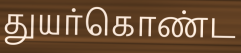
துயர்கொண்ட